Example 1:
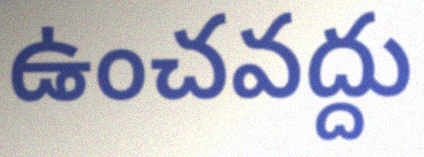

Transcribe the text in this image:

ఉంచవద్దు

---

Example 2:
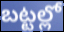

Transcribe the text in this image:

బట్టల్లో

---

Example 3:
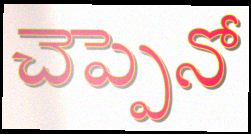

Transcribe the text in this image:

చెప్పెనో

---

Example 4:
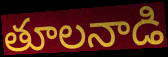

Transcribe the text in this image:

తూలనాడి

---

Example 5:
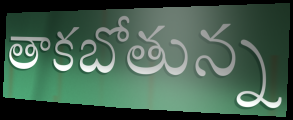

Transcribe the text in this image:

తాకబోతున్న